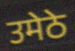
उमेठे